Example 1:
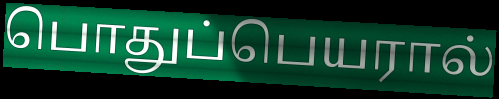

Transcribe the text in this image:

பொதுப்பெயரால்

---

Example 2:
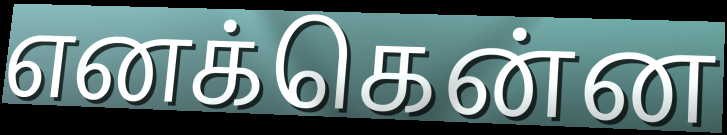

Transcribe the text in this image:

எனக்கென்ன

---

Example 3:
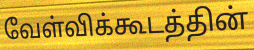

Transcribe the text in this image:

வேள்விக்கூடத்தின்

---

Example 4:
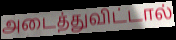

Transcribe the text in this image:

அடைத்துவிட்டால்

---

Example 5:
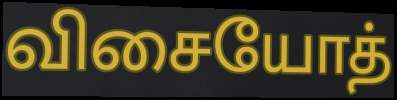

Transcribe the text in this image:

விசையோத்